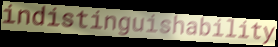
indistinguishability